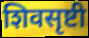
शिवसृष्टी